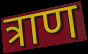
त्राण